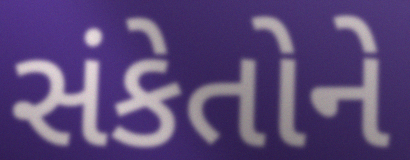
સંકેતોને